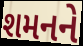
શમનને